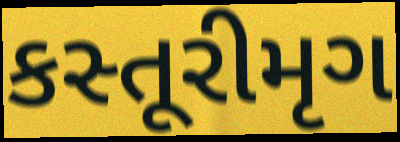
કસ્તૂરીમૃગ